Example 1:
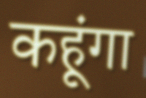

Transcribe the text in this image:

कहूंगा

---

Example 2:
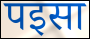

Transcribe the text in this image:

पइसा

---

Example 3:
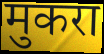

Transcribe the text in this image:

मुकरा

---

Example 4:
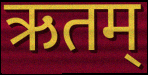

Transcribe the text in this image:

ऋतम्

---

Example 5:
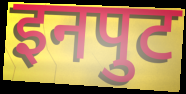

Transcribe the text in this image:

इनपुट